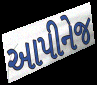
આપીનેજ